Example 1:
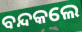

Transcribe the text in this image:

ବନ୍ଦକଲେ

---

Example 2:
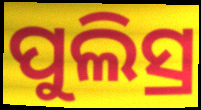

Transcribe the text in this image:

ପୁଲିସ୍ର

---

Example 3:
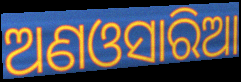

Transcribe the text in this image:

ଅଣଓସାରିଆ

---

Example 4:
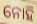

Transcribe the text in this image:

ନୋହି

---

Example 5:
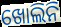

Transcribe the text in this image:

ଖୋଲିନି